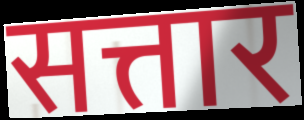
सत्तार